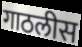
गाठलीस